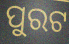
ପୁରଟ